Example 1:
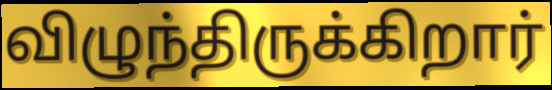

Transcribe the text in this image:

விழுந்திருக்கிறார்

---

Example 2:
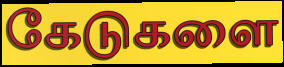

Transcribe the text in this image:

கேடுகளை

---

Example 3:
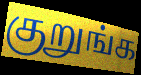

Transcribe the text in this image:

குறுங்க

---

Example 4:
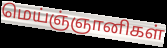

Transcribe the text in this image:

மெய்ஞ்ஞானிகள்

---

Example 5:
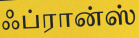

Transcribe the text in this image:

ஃப்ரான்ஸ்